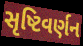
સૃષ્ટિવર્ણન